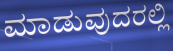
ಮಾಡುವುದರಲ್ಲಿ